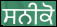
ਸਨੀਕੋ